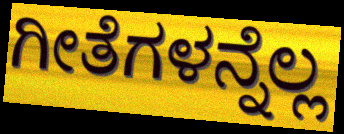
ಗೀತೆಗಳನ್ನೆಲ್ಲ